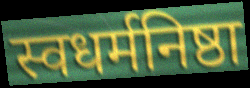
स्वधर्मनिष्ठा